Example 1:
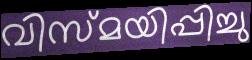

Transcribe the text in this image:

വിസ്മയിപ്പിച്ചു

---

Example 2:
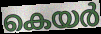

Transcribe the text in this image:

കെയർ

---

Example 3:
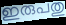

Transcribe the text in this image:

ഇരുപതു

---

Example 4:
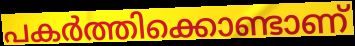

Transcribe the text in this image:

പകർത്തിക്കൊണ്ടാണ്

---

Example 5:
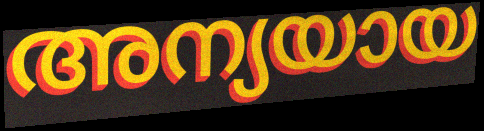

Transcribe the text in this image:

അന്യയായ